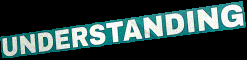
UNDERSTANDING